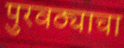
पुरवठ्याचा